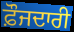
ਫ਼ੌਜਦਾਰੀ